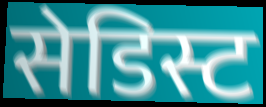
सेडिस्ट